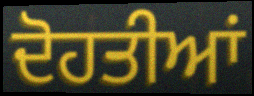
ਦੋਹਤੀਆਂ